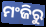
ମଂଜିରୁ